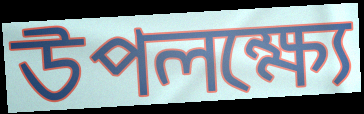
উপলক্ষ্যে